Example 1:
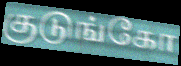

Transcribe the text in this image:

குடுங்கோ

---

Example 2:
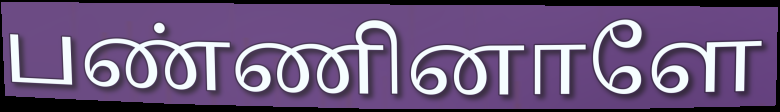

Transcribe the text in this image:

பண்ணினாளே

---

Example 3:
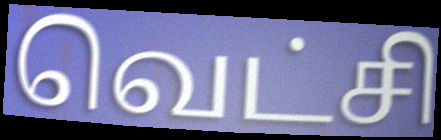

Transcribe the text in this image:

வெட்சி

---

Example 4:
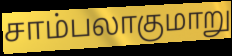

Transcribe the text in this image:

சாம்பலாகுமாறு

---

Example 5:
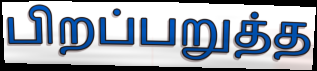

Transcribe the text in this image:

பிறப்பறுத்த